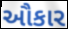
ઔકાર